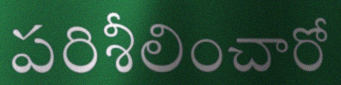
పరిశీలించారో